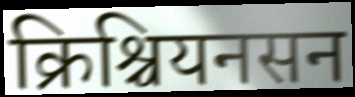
क्रिश्चियनसन